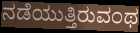
ನಡೆಯುತ್ತಿರುವಂಥ